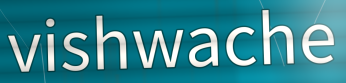
vishwache